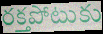
రక్తపోటుకు